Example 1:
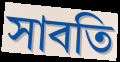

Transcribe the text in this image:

সাবতি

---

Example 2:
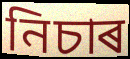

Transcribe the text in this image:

নিচাৰ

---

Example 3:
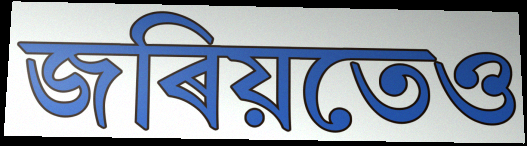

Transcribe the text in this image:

জৰিয়তেও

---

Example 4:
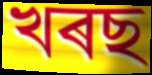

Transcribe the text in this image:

খৰছ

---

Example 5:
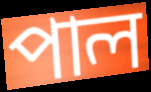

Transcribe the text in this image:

পাল